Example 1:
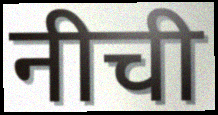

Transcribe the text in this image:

नीची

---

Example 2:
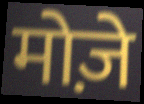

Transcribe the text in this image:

मोज़े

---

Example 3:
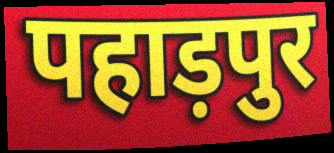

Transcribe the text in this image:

पहाड़पुर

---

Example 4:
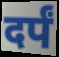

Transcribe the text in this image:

दर्पं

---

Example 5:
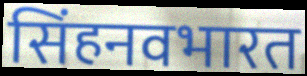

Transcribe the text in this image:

सिंहनवभारत